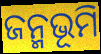
ଜନ୍ମଭୂମି